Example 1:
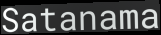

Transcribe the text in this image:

Satanama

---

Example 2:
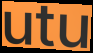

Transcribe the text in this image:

utu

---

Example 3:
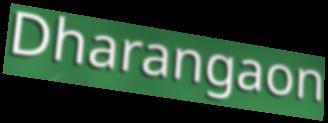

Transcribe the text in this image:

Dharangaon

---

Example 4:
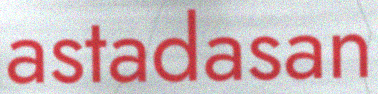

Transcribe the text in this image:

astadasan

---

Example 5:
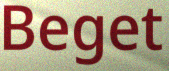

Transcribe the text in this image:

Beget